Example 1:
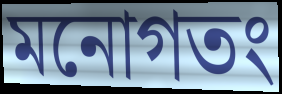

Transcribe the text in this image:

মনোগতং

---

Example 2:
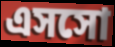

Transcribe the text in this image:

এসসো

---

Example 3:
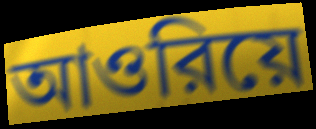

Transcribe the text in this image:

আওরিয়ে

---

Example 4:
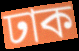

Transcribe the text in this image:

ঢাক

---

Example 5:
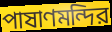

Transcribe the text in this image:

পাষাণমন্দির